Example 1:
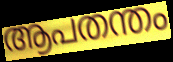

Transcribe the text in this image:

ആപതന്തം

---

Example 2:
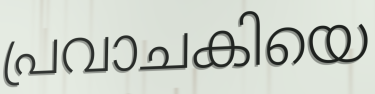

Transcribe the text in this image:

പ്രവാചകിയെ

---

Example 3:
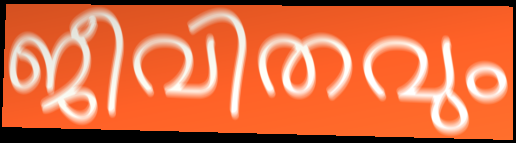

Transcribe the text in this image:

ജീവിതവും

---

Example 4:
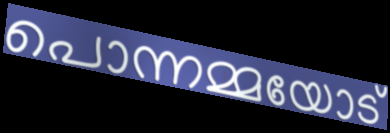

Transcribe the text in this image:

പൊന്നമ്മയോട്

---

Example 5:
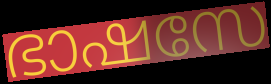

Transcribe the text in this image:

ഭാഷസേ